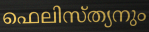
ഫെലിസ്ത്യനും